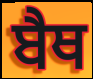
ਬੈਥ